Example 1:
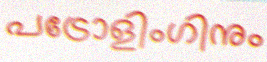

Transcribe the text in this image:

പട്രോളിംഗിനും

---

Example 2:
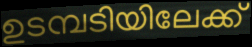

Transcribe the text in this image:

ഉടമ്പടിയിലേക്ക്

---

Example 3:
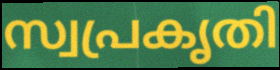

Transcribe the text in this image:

സ്വപ്രകൃതി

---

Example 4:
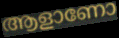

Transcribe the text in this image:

ആളാണോ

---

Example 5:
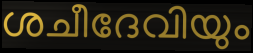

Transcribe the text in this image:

ശചീദേവിയും